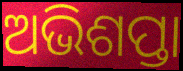
ଅଭିଶପ୍ତା